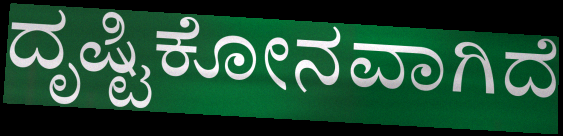
ದೃಷ್ಟಿಕೋನವಾಗಿದೆ